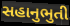
સહાનુભુતી